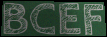
BCEF